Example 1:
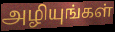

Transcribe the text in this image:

அழியுங்கள்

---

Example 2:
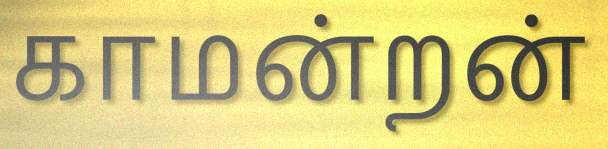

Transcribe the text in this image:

காமன்றன்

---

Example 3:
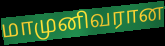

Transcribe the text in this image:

மாமுனிவரான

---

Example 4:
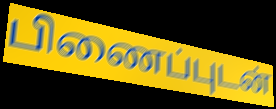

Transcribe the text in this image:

பிணைப்புடன்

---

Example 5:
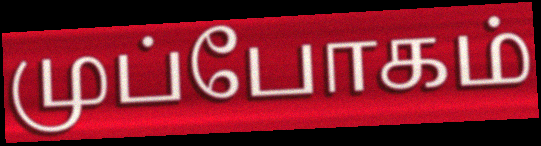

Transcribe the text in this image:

முப்போகம்